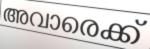
അവാരെക്ക്